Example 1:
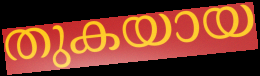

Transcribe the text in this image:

തുകയായ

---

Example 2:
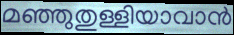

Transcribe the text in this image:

മഞ്ഞുതുള്ളിയാവാൻ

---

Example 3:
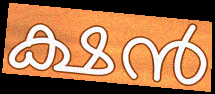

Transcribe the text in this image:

ക്ഷൻ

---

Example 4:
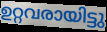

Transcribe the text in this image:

ഉറ്റവരായിട്ടു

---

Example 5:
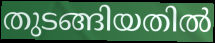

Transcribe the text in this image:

തുടങ്ങിയതിൽ